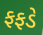
ફફડે